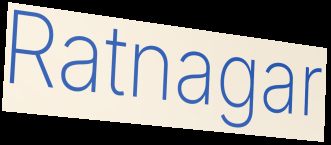
Ratnagar